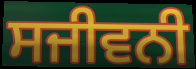
ਸਜੀਵਨੀ